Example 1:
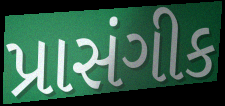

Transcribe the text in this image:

પ્રાસંગીક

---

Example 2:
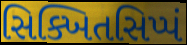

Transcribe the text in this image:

સિક્ખિતસિપ્પં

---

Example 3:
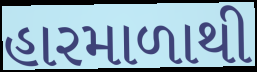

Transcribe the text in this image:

હારમાળાથી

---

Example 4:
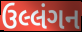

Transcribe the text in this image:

ઉલ્લંગન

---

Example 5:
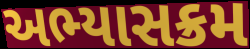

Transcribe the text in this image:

અભ્યાસક્રમ